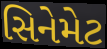
સિનેમેટ